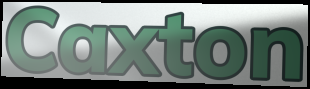
Caxton